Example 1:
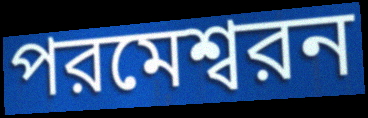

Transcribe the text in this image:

পরমেশ্বরন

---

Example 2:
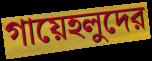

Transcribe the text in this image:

গায়েহলুদের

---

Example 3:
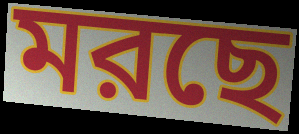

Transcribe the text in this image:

মরছে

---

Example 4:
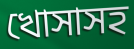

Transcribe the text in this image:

খোসাসহ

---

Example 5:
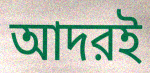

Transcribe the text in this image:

আদরই